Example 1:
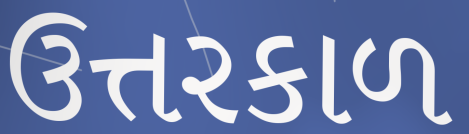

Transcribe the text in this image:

ઉત્તરકાળ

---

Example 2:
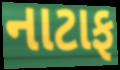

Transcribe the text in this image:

નાટાફ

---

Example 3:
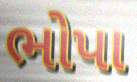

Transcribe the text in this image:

ભોપા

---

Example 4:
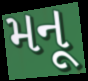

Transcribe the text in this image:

મનૂ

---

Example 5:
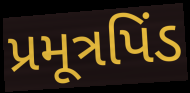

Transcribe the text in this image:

પ્રમૂત્રપિંડ